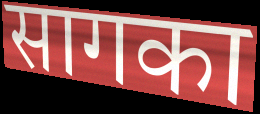
सागका